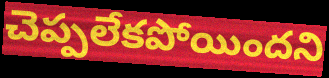
చెప్పలేకపోయిందని